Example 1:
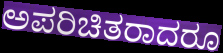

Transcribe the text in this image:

ಅಪರಿಚಿತರಾದರೂ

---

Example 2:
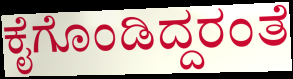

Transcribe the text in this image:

ಕೈಗೊಂಡಿದ್ದರಂತೆ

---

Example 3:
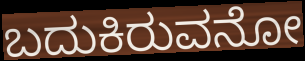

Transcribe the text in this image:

ಬದುಕಿರುವನೋ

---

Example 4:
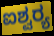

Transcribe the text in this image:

ಐಶ್ವರ‍್ಯ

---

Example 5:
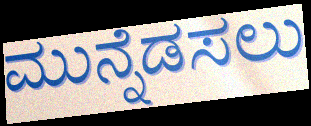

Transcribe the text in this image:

ಮುನ್ನೆಡಸಲು